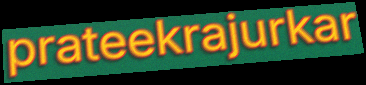
prateekrajurkar